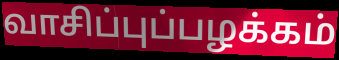
வாசிப்புப்பழக்கம்